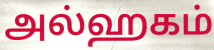
அல்ஹகம்